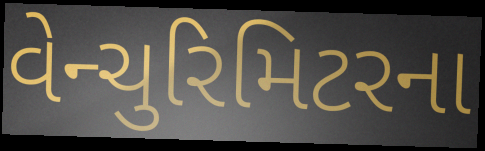
વેન્ચુરિમિટરના